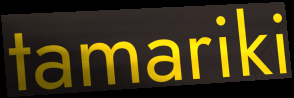
tamariki